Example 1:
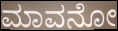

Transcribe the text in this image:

ಮಾವನೋ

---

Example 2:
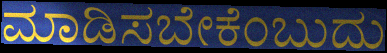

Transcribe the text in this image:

ಮಾಡಿಸಬೇಕೆಂಬುದು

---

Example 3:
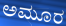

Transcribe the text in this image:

ಅಮೂರ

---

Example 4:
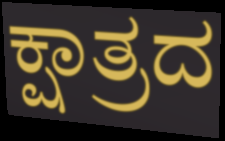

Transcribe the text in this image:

ಕ್ಷಾತ್ರದ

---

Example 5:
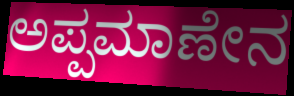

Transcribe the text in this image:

ಅಪ್ಪಮಾಣೇನ